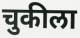
चुकीला